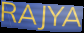
RAJYA